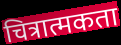
चित्रात्मकता